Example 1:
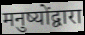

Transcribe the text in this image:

मनुष्योंद्वारा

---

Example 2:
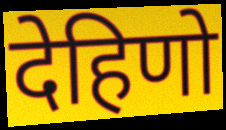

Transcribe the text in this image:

देहिणो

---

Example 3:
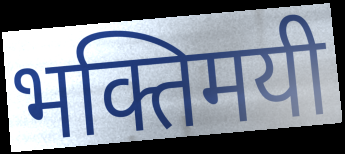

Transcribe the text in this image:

भक्तिमयी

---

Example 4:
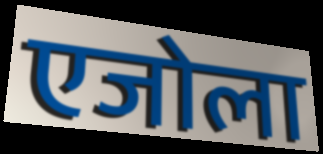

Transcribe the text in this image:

एजोला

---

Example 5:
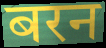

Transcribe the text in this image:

बरन